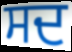
ਸਦ